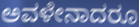
ಅವಳೇನಾದರೂ